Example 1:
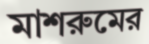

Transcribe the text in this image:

মাশরুমের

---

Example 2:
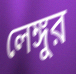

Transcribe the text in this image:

লেঙ্গুর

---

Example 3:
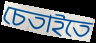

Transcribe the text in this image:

চেতাইতে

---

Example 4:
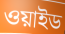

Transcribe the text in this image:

ওয়াইড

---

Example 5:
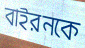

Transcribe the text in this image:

বাইরনকে